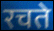
रचते